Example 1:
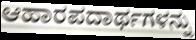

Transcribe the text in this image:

ಆಹಾರಪದಾರ್ಥಗಳನ್ನು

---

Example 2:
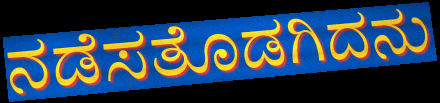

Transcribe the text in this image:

ನಡೆಸತೊಡಗಿದನು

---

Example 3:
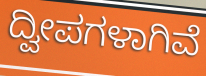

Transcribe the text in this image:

ದ್ವೀಪಗಳಾಗಿವೆ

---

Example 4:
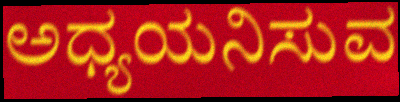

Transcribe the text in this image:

ಅಧ್ಯಯನಿಸುವ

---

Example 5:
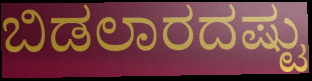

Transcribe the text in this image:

ಬಿಡಲಾರದಷ್ಟು